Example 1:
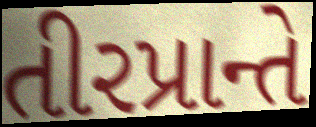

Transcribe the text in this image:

તીરપ્રાન્તે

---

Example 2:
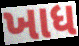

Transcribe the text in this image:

ખાધ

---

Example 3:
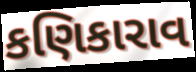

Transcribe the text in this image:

કણિકારાવ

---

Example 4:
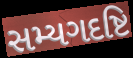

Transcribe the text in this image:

સમ્યગદષ્ટિ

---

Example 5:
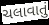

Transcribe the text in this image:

ચલાવાતું